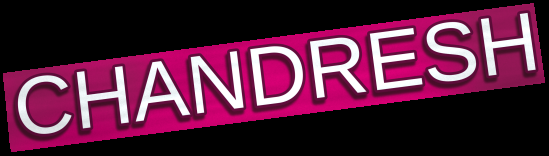
CHANDRESH